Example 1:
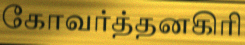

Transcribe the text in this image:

கோவர்த்தனகிரி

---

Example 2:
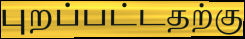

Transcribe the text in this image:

புறப்பட்டதற்கு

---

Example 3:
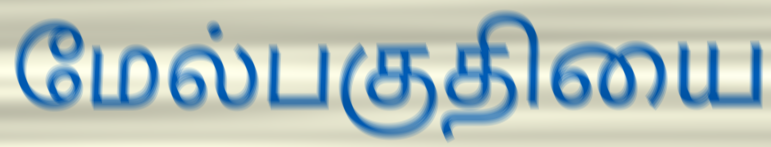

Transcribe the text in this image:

மேல்பகுதியை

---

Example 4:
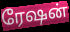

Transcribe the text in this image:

ரேஷன்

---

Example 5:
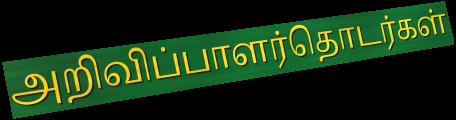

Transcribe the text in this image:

அறிவிப்பாளர்தொடர்கள்